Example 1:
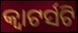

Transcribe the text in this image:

କ୍ୱାଟର୍ସଟି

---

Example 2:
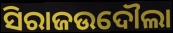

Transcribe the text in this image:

ସିରାଜଉଦୌଲା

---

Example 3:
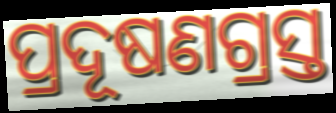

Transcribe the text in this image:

ପ୍ରଦୂଷଣଗ୍ରସ୍ତ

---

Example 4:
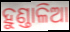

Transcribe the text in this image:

ହୁଣ୍ଡାଳିଆ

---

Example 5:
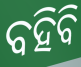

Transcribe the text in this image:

ବହିବି